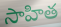
సాహిత